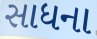
સાધના